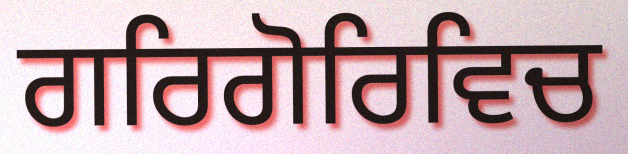
ਗਰਿਗੋਰਿਵਿਚ